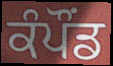
ਕੰਪੌਂਡ